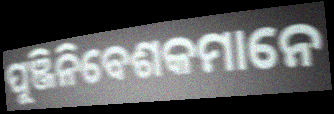
ପୁଞ୍ଜିନିବେଶକମାନେ